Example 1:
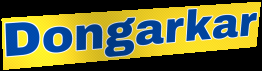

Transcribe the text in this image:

Dongarkar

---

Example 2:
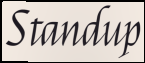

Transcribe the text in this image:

Standup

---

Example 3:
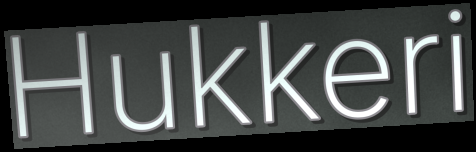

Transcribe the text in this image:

Hukkeri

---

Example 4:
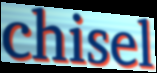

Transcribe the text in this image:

chisel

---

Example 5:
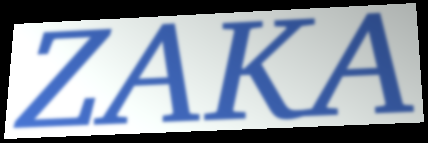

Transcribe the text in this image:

ZAKA